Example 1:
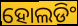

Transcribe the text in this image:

ହୋଲଡିଂ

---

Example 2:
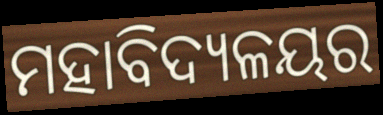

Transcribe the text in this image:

ମହାବିଦ୍ୟଳୟର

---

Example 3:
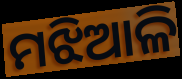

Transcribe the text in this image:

ମଝିଆଳି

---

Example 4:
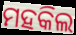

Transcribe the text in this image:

ମହକିଲ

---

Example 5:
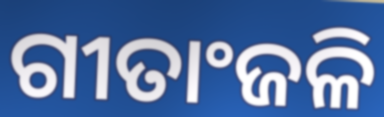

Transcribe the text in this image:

ଗୀତାଂଜଳି